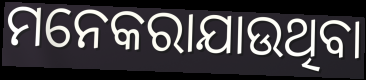
ମନେକରାଯାଉଥିବା